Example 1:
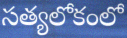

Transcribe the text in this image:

సత్యలోకంలో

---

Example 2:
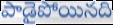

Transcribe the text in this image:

పాడైపోయినది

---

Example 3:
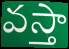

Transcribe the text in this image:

వస్తా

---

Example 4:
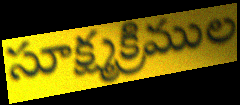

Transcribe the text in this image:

సూక్ష్మక్రిముల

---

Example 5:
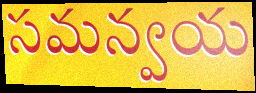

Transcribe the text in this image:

సమన్వయ